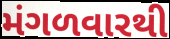
મંગળવારથી